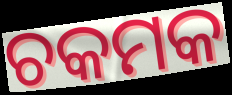
ଚକମକ